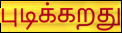
புடிக்கறது